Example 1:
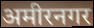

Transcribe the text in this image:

अमीरनगर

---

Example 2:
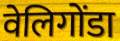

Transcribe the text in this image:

वेलिगोंडा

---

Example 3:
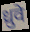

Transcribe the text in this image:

ध्रुवे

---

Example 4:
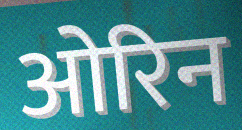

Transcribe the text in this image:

ओरिन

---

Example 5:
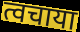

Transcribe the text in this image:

त्वचाया